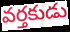
వర్తకుడు